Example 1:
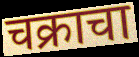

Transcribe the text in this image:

चक्राचा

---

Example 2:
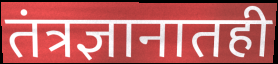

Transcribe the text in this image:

तंत्रज्ञानातही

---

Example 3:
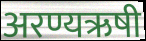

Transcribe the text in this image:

अरण्यऋषी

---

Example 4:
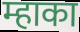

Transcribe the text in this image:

म्हाका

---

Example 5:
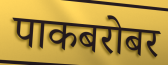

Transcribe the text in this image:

पाकबरोबर